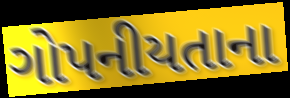
ગોપનીયતાના